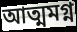
আত্মমগ্ন